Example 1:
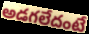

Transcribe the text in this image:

అడగలేదంటే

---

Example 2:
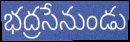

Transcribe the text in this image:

భద్రసేనుండు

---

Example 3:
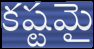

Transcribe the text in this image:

కష్టమై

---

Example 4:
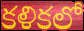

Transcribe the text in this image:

కళికలో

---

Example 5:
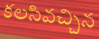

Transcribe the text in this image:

కలసివచ్చిన